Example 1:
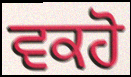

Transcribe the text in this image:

ਵਕਹੋ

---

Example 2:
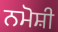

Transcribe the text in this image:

ਨਮੋਸ਼ੀ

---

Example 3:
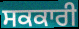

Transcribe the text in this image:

ਸਕਕਾਰੀ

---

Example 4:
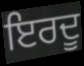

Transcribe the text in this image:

ਇਰਦੂ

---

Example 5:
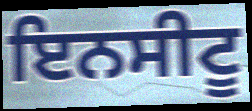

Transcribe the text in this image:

ਇਨਸੀਟੂ